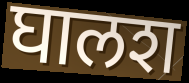
घालश